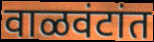
वाळवंटांत